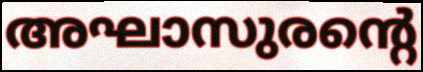
അഘാസുരന്റെ